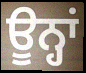
ਊਨ੍ਹਾਂ